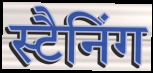
स्टैनिंग